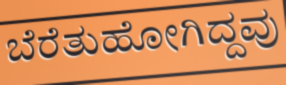
ಬೆರೆತುಹೋಗಿದ್ದವು